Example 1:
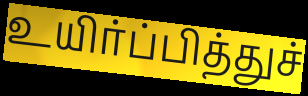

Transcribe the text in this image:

உயிர்ப்பித்துச்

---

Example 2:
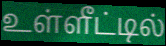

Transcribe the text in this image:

உள்ளீட்டில்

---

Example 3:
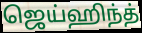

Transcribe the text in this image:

ஜெய்ஹிந்த்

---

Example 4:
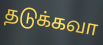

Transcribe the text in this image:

தடுக்கவா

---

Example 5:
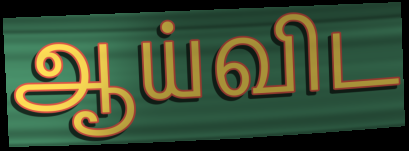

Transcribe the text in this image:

ஆய்விட